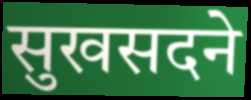
सुखसदने